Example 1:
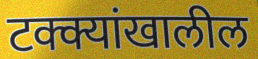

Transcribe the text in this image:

टक्क्यांखालील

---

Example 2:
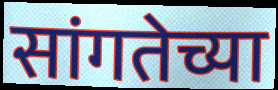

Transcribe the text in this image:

सांगतेच्या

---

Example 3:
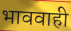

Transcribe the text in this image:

भाववाही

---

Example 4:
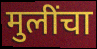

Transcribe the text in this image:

मुलींचा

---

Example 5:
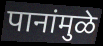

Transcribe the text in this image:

पानांमुळे